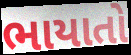
ભાયાતો